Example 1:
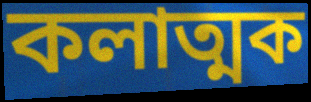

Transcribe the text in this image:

কলাত্মক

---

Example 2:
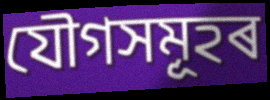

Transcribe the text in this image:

যৌগসমূহৰ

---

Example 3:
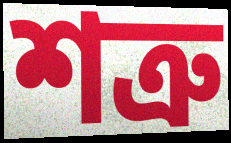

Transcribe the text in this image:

শত্ৰু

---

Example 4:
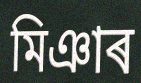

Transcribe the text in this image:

মিঞাৰ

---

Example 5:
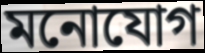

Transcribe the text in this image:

মনোযোগ